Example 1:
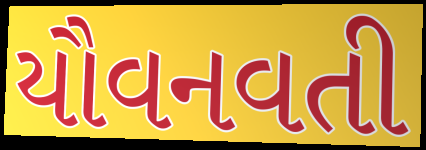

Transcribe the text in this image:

યૌવનવતી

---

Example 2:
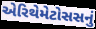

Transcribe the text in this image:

એરિથેમેટોસસનું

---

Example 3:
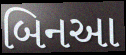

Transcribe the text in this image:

બિનઆ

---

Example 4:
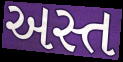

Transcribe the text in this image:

અસ્ત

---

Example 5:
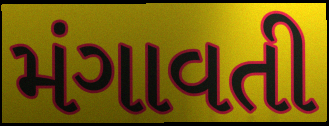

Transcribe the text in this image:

મંગાવતી